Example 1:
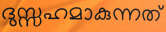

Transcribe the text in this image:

ദുസ്സഹമാകുന്നത്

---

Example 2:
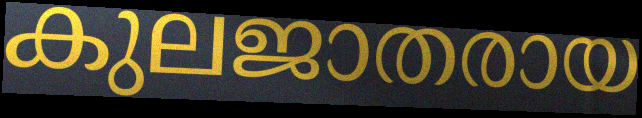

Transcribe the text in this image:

കുലജാതരായ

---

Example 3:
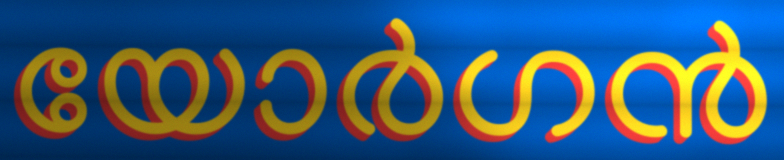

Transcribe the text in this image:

യോർഗൻ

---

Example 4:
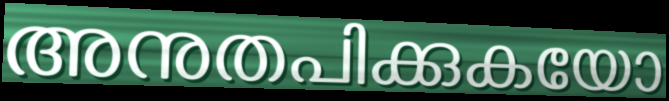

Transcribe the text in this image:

അനുതപിക്കുകയോ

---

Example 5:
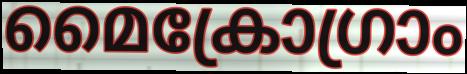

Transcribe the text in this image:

മൈക്രോഗ്രാം